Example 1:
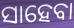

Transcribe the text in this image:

ସାହେବା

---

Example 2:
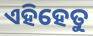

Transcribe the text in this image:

ଏହିହେତୁ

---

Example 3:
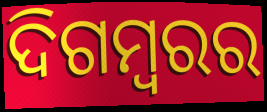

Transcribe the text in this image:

ଦିଗମ୍ୱରର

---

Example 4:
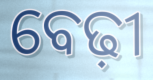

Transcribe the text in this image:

ବେଢ଼ୀ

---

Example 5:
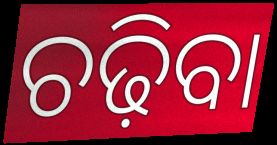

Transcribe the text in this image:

ଚଢ଼ିବା